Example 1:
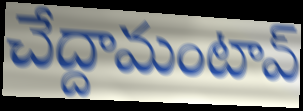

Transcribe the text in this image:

చేద్దామంటావ్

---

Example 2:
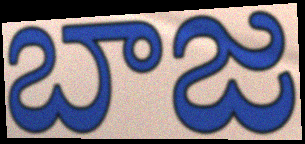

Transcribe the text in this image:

బాజ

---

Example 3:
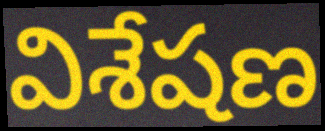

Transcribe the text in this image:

విశేషణ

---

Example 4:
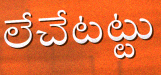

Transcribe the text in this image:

లేచేటట్టు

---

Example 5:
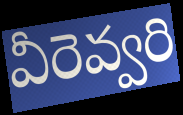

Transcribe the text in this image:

వీరెవ్వరి